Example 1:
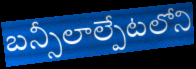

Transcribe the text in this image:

బన్సీలాల్పేటలోని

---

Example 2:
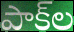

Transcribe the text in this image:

పాక్‌ల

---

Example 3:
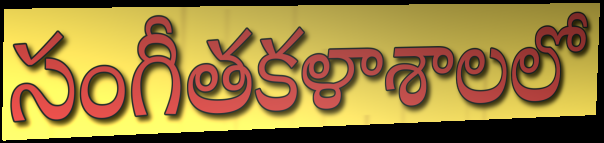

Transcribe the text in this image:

సంగీతకళాశాలలో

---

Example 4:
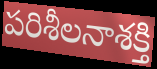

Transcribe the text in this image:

పరిశీలనాశక్తి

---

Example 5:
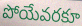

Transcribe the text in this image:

పోయేవరకూ